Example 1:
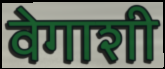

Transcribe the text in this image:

वेगाशी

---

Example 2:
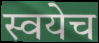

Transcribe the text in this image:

स्वयेच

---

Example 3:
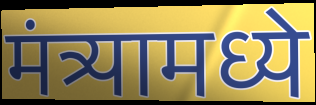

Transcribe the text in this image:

मंत्र्यामध्ये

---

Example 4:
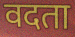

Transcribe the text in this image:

वदता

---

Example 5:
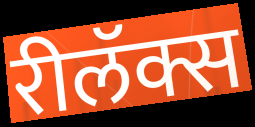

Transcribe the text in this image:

रीलॅक्स